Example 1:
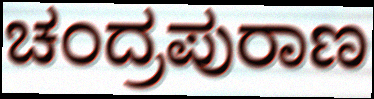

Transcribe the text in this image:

ಚಂದ್ರಪುರಾಣ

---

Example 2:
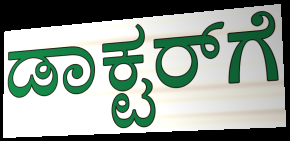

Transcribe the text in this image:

ಡಾಕ್ಟರ್‌ಗೆ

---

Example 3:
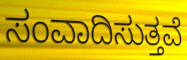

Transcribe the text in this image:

ಸಂವಾದಿಸುತ್ತವೆ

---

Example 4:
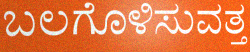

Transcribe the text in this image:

ಬಲಗೊಳಿಸುವತ್ತ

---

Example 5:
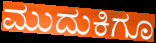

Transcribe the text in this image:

ಮುದುಕಿಗೂ